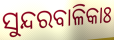
ସୁନ୍ଦରବାଳିକାଃ